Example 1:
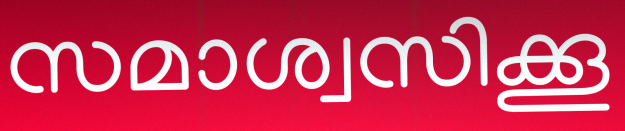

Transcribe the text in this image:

സമാശ്വസിക്കൂ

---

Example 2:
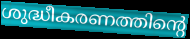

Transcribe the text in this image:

ശുദ്ധീകരണത്തിന്റെ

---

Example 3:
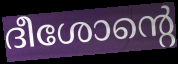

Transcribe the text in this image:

ദീശോന്റെ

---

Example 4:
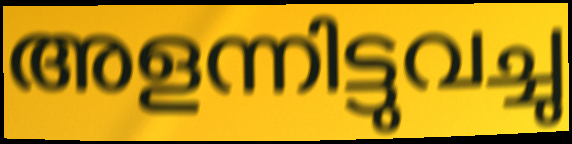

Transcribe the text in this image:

അളന്നിട്ടുവച്ചു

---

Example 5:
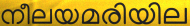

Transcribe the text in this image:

നീലയമരിയില